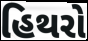
હિથરો